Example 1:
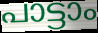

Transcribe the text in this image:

പാട്ടാം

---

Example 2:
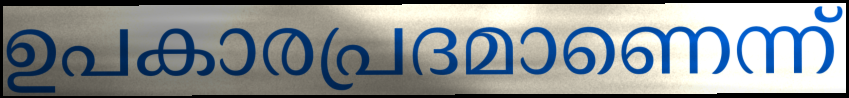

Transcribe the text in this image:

ഉപകാരപ്രദമാണെന്ന്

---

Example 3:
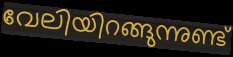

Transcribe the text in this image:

വേലിയിറങ്ങുന്നുണ്ട്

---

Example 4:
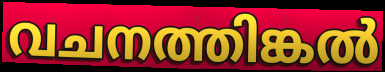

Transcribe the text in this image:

വചനത്തിങ്കൽ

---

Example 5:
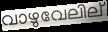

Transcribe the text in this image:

വാഴുവേലില്